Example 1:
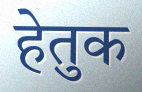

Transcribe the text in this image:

हेतुक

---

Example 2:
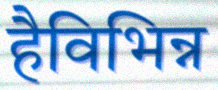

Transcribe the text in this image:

हैविभिन्न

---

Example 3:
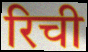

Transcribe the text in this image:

रिची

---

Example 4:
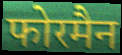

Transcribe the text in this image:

फोरमैन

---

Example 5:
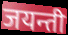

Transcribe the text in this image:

जयन्ती